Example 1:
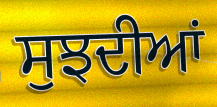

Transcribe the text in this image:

ਸੁਝਦੀਆਂ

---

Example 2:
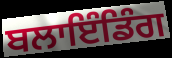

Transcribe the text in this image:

ਬਲਾਇੰਡਿੰਗ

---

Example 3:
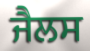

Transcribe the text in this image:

ਜੈਲਸ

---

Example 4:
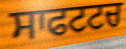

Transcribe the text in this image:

ਸਾਫਟਟਚ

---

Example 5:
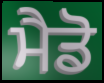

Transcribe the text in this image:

ਮੈਡੋ